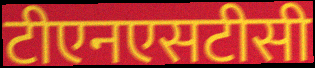
टीएनएसटीसी